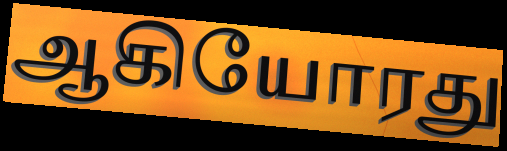
ஆகியோரது